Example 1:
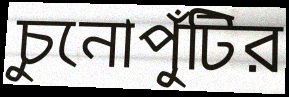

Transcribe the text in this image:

চুনোপুঁটির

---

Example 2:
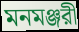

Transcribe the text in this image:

মনমঞ্জরী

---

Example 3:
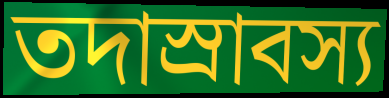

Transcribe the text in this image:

তদাস্রাবস্য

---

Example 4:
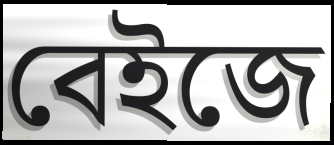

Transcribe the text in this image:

বেইজে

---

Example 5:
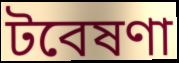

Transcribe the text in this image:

টবেষণা